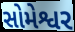
સોમેશ્વર